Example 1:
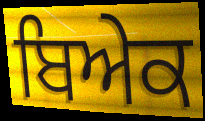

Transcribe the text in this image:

ਬਿਅੇਕ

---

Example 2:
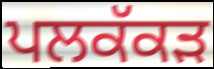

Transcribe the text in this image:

ਪਲਕੱਕੜ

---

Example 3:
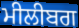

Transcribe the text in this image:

ਮੀਲੀਬਗ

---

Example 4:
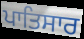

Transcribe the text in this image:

ਪਾਤਿਸਾਰ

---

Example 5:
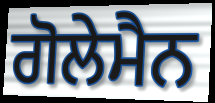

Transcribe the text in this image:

ਗੋਲੇਮੈਨ